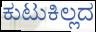
ಕುಟುಕಿಲ್ಲದ